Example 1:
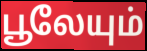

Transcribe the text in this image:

பூலேயும்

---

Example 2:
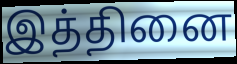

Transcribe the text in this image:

இத்தினை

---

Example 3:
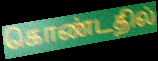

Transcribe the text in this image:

கொண்டதில்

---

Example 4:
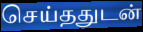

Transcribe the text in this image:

செய்ததுடன்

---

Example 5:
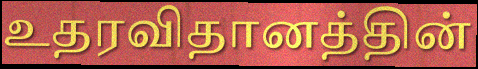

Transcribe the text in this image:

உதரவிதானத்தின்